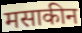
मसाकीन